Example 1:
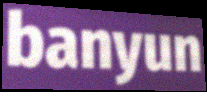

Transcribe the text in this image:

banyun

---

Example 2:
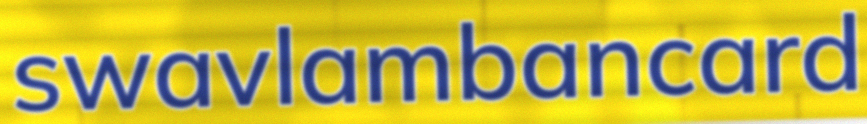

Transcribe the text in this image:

swavlambancard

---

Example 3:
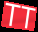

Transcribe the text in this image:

TT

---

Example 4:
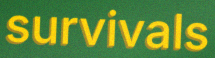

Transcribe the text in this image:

survivals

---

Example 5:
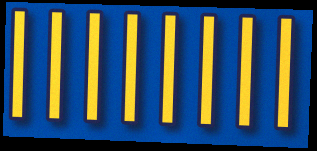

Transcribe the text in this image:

IIIIIIII